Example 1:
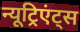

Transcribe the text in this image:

न्यूट्रिएंट्स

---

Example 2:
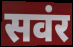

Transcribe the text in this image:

सवंर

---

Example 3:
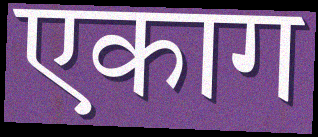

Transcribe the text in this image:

एकाग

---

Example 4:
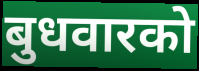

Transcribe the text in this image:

बुधवारको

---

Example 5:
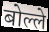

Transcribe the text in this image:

बोल्ले